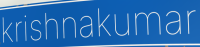
krishnakumar